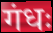
गंधः